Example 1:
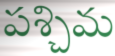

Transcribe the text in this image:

పశ్చిమ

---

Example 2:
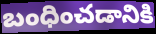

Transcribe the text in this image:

బంధించడానికి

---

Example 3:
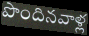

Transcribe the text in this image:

పొందినవాళ్ల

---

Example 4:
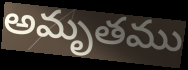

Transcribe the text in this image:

అమృతము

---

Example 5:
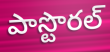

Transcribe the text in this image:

పాస్టొరల్